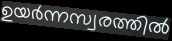
ഉയർന്നസ്വരത്തിൽ